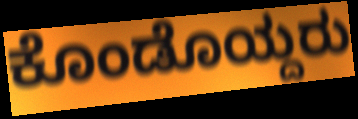
ಕೊಂಡೊಯ್ದರು